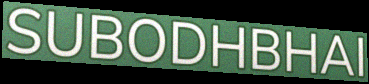
SUBODHBHAI